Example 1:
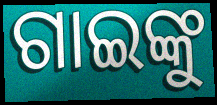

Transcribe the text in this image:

ଗାଇଙ୍କୁ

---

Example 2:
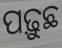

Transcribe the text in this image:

ପଢ଼ୁଛ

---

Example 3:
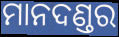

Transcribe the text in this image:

ମାନଦଣ୍ଡର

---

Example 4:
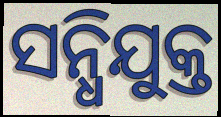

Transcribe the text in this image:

ସନ୍ଧିଯୁକ୍ତ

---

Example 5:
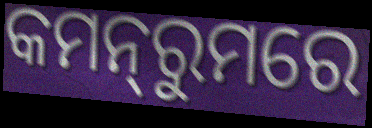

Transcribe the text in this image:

କମନ୍‌ରୁମରେ